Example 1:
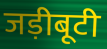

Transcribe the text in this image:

जड़ीबूटी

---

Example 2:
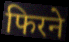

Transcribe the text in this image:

फिरने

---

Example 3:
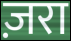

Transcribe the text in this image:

ज़रा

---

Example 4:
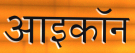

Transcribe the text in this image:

आइकॉन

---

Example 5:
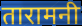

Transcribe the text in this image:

तारामनी